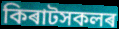
কিৰাটসকলৰ